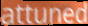
attuned